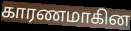
காரணமாகின